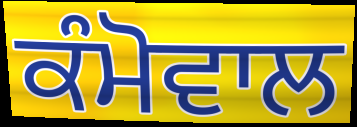
ਕੰਮੋਵਾਲ